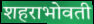
शहराभोवती